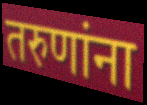
तरुणांना